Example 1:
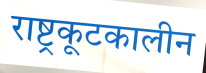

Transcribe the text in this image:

राष्ट्रकूटकालीन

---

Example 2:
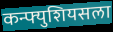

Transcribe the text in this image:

कन्फ्युशियसला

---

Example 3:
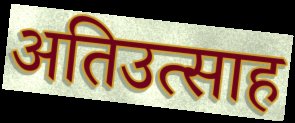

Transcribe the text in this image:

अतिउत्साह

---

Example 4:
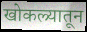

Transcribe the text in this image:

खोकल्यातून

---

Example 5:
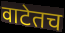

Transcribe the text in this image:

वाटेतच